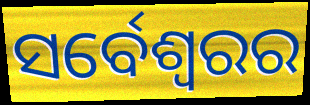
ସର୍ବେଶ୍ୱରର